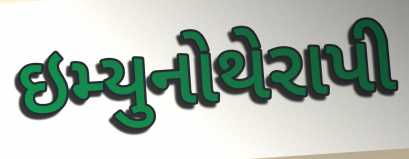
ઇમ્યુનોથેરાપી